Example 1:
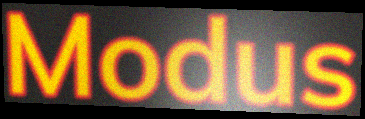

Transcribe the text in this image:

Modus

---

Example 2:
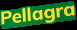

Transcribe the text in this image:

Pellagra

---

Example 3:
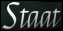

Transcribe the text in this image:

Staat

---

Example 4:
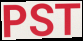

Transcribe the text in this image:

PST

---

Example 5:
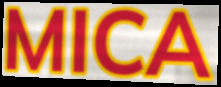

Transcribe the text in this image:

MICA